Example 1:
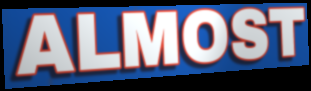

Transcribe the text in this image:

ALMOST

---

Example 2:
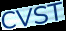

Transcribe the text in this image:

CVST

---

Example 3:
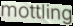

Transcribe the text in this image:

mottling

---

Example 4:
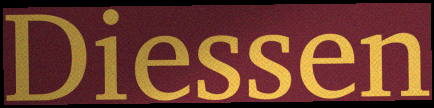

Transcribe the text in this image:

Diessen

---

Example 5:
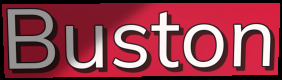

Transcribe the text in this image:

Buston